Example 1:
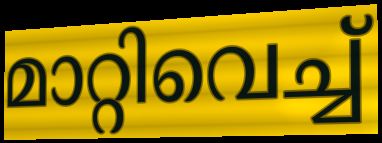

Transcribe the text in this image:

മാറ്റിവെച്ച്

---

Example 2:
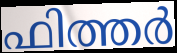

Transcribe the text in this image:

ഫിത്തർ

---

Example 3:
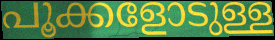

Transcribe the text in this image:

പൂക്കളോടുള്ള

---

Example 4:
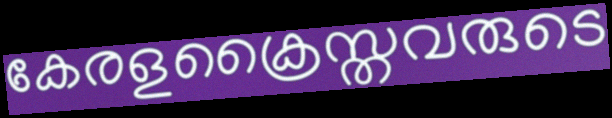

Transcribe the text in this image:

കേരളക്രൈസ്തവരുടെ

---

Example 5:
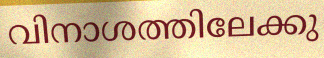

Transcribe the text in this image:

വിനാശത്തിലേക്കു